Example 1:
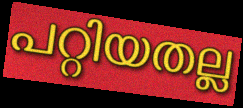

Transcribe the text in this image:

പറ്റിയതല്ല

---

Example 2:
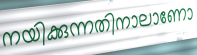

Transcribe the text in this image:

നയിക്കുന്നതിനാലാണോ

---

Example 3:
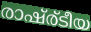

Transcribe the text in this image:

രാഷ്ര്ടീയ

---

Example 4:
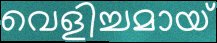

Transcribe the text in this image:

വെളിച്ചമായ്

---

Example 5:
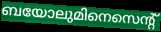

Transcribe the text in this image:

ബയോലുമിനെസെന്റ്